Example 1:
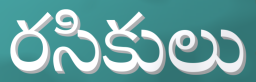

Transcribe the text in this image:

రసికులు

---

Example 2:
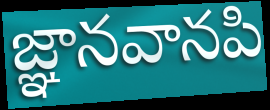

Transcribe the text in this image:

జ్ఞానవానపి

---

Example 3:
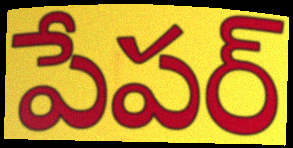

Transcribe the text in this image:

పేపర్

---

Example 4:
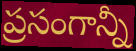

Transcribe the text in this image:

ప్రసంగాన్నీ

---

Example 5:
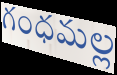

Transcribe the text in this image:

గంధమల్ల